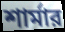
শার্মার